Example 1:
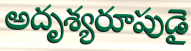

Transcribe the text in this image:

అదృశ్యరూపుడై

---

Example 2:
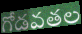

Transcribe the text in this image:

గోడవతల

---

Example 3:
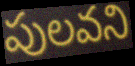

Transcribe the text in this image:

పులవని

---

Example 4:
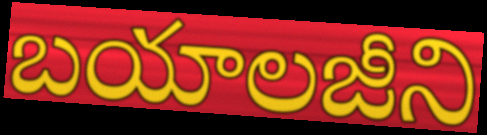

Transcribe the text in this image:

బయాలజీని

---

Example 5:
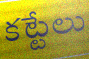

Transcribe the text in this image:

కట్టేలు